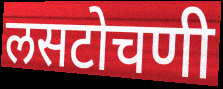
लसटोचणी